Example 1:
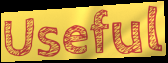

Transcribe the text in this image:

Useful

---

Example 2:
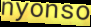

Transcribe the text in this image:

nyonso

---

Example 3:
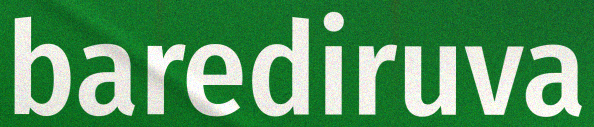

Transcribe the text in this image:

barediruva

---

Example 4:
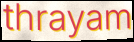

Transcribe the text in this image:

thrayam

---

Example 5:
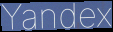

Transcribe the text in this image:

Yandex